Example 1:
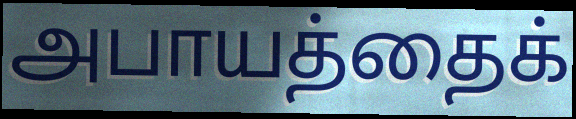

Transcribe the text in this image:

அபாயத்தைக்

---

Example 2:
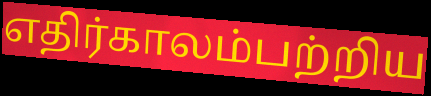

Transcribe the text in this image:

எதிர்காலம்பற்றிய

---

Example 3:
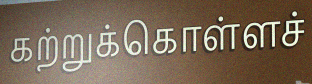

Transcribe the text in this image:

கற்றுக்கொள்ளச்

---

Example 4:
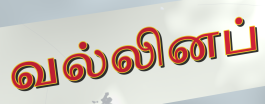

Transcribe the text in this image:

வல்லினப்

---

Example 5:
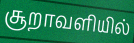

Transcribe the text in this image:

சூறாவளியில்